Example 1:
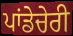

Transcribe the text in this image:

ਪਾਂਡੇਚੇਰੀ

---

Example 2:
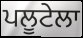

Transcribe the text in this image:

ਪਲੂਟੇਲਾ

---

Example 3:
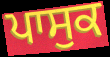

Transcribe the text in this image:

ਪਾਸੁਕ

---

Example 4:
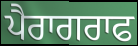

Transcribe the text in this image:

ਪੈਰਾਗਰਾਫ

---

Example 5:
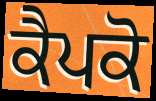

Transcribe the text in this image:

ਕੈਪਕੋ